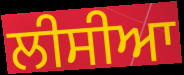
ਲੀਸੀਆ